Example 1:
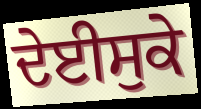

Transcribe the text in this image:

ਦੇਈਸੁਕੇ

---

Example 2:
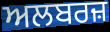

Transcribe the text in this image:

ਅਲਬਰਜ਼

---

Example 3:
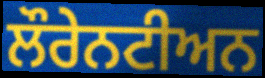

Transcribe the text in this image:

ਲੌਰੇਨਟੀਅਨ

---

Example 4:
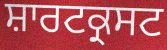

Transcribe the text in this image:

ਸ਼ਾਰਟਕ੍ਰਸਟ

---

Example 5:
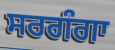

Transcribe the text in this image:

ਸਰਗੰਗਾ